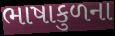
ભાષાકુળના